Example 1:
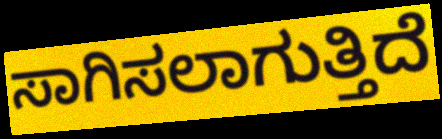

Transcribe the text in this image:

ಸಾಗಿಸಲಾಗುತ್ತಿದೆ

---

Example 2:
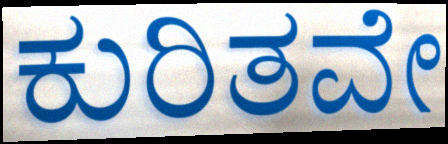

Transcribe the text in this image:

ಕುರಿತವೇ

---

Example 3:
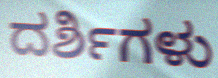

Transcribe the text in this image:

ದರ್ಶಿಗಳು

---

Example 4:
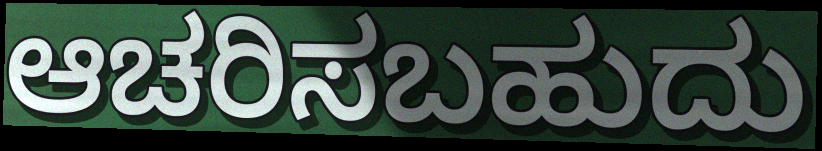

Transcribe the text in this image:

ಆಚರಿಸಬಹುದು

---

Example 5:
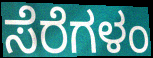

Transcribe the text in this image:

ಸೆರೆಗಳಂ